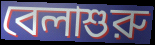
বেলাশুরু